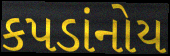
કપડાંનોય